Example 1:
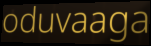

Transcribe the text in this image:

oduvaaga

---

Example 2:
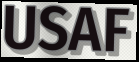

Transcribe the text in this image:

USAF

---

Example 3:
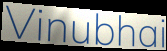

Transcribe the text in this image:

Vinubhai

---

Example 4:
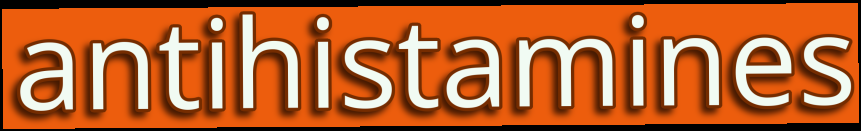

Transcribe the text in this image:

antihistamines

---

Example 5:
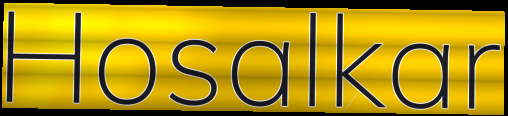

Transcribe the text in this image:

Hosalkar